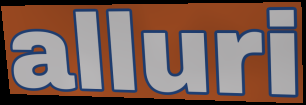
alluri